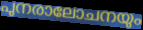
പുനരാലോചനയും